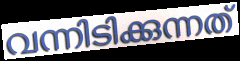
വന്നിടിക്കുന്നത്